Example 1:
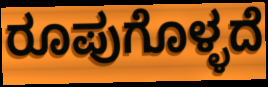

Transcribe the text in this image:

ರೂಪುಗೊಳ್ಳದೆ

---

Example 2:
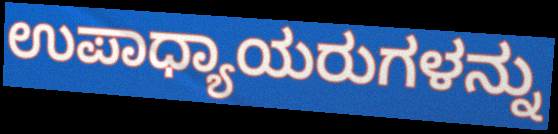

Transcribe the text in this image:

ಉಪಾಧ್ಯಾಯರುಗಳನ್ನು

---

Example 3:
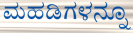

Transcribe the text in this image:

ಮಹಡಿಗಳನ್ನೂ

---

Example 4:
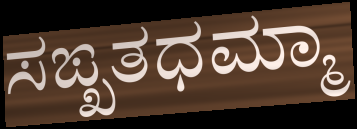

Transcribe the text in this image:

ಸಙ್ಖತಧಮ್ಮಾ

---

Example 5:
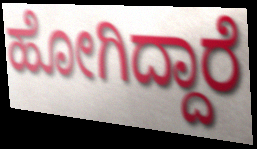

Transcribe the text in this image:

ಹೋಗಿದ್ದಾರೆ